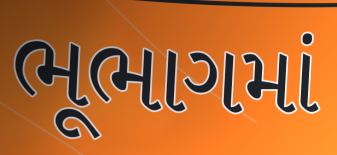
ભૂભાગમાં